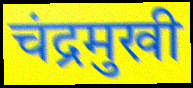
चंद्रमुखी